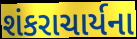
શંકરાચાર્યના